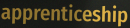
apprenticeship